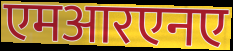
एमआरएनए